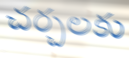
చర్చలకు